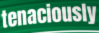
tenaciously